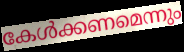
കേൾക്കണമെന്നും